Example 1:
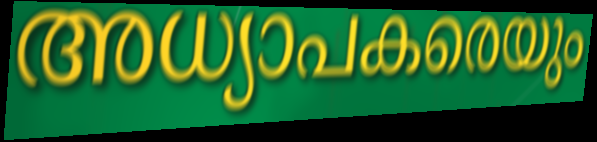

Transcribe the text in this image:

അധ്യാപകരെയും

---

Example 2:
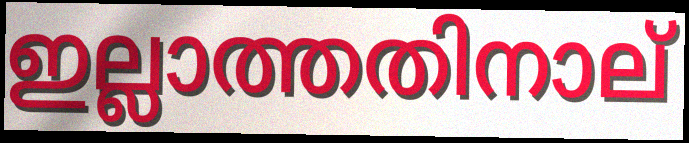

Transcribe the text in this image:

ഇല്ലാത്തതിനാല്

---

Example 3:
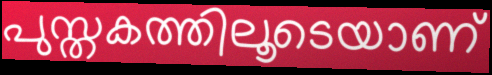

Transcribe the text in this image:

പുസ്തകത്തിലൂടെയാണ്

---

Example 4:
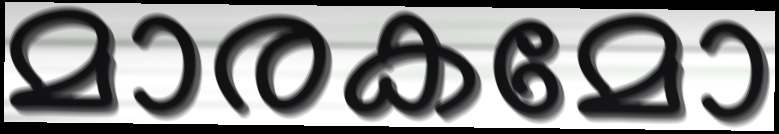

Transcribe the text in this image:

മാരകമോ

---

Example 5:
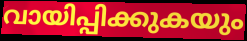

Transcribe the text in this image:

വായിപ്പിക്കുകയും